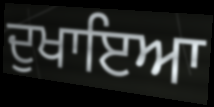
ਦੁਖਾਇਆ